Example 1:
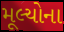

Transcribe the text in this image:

મૂલ્‍યોના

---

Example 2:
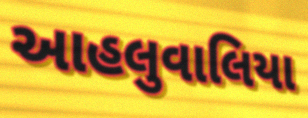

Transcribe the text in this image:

આહલુવાલિયા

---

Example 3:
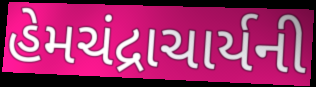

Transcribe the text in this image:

હેમચંદ્રાચાર્યની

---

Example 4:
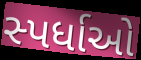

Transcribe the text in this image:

સ્પર્ધાઓ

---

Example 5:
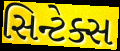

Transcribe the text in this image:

સિન્ટેક્સ